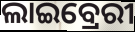
ଲାଇବ୍ରେରୀ